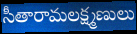
సీతారామలక్ష్మణులు